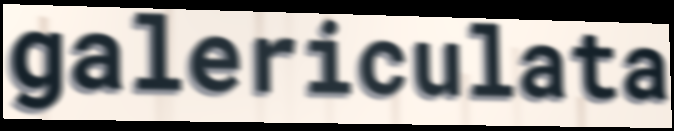
galericulata